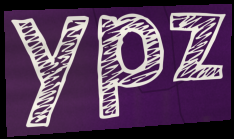
ypz